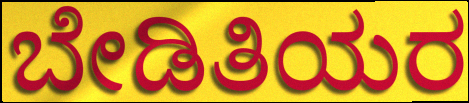
ಬೇಡಿತಿಯರ